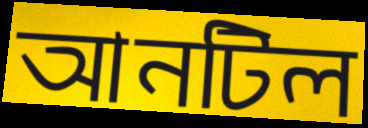
আনটিল